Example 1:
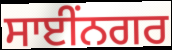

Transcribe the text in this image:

ਸਾਈਂਨਗਰ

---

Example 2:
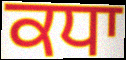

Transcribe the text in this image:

ਕਧਾ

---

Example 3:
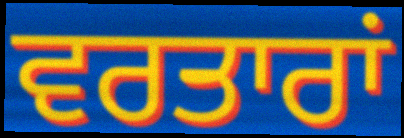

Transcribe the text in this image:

ਵਰਤਾਰਾਂ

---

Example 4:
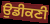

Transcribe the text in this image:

ਉਡੀਕਣੀ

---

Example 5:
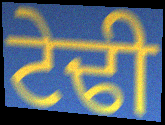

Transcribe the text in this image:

ਟੇਢੀ